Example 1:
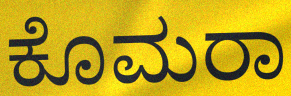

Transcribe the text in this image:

ಕೊಮರಾ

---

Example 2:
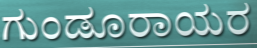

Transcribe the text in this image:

ಗುಂಡೂರಾಯರ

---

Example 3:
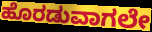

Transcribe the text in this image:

ಹೊರಡುವಾಗಲೇ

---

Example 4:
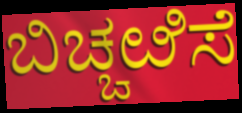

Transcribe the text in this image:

ಬಿಚ್ಚೞಿಸೆ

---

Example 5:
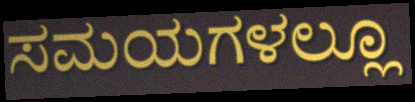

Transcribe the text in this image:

ಸಮಯಗಳಲ್ಲೂ